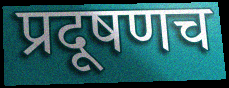
प्रदूषणच